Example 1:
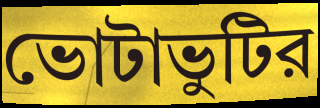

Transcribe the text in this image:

ভোটাভুটির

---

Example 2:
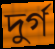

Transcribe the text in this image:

দুর্গ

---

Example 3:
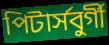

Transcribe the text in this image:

পিটার্সবুর্গী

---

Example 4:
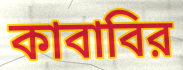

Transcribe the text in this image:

কাবাবির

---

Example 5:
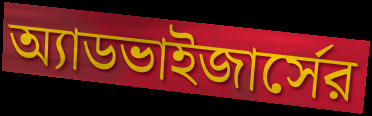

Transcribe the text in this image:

অ্যাডভাইজার্সের